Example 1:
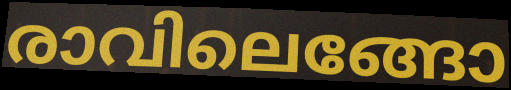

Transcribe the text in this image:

രാവിലെങ്ങോ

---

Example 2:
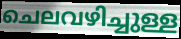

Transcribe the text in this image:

ചെലവഴിച്ചുള്ള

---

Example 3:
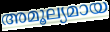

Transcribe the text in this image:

അമൂല്യമായ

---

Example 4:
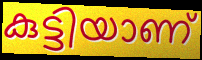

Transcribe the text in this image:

കുട്ടിയാണ്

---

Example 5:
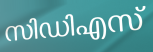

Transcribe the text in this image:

സിഡിഎസ്